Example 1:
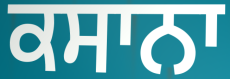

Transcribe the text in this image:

ਕਸਾਨਾ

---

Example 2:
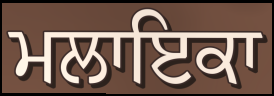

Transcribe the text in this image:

ਮਲਾਇਕਾ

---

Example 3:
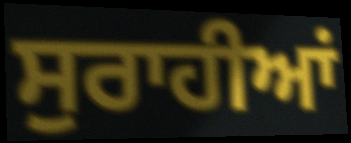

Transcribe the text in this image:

ਸੁਰਾਹੀਆਂ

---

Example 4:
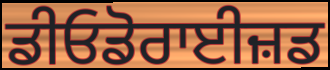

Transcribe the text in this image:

ਡੀਓਡੋਰਾਈਜ਼ਡ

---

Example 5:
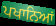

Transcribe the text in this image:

ਪਖਾਨਿਆਂ